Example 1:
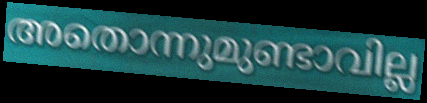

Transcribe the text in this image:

അതൊന്നുമുണ്ടാവില്ല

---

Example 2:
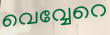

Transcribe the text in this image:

വെവ്വേറെ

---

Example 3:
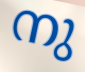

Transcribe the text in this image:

നു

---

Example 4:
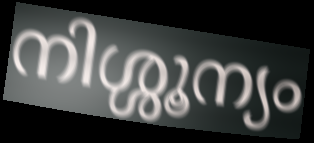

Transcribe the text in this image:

നിശ്ശൂന്യം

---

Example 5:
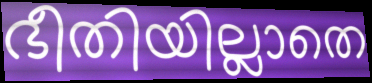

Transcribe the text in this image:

ഭീതിയില്ലാതെ